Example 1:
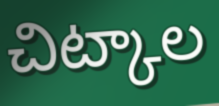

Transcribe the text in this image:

చిట్కాల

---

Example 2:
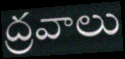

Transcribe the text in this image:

ద్రవాలు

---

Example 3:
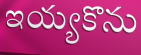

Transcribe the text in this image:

ఇయ్యకొను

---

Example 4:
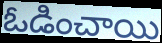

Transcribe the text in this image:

ఓడించాయి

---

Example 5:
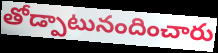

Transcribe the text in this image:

తోడ్పాటునందించారు